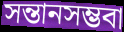
সন্তানসম্ভবা